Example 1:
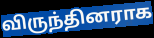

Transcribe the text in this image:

விருந்தினராக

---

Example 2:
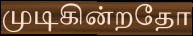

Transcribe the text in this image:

முடிகின்றதோ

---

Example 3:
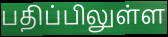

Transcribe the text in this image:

பதிப்பிலுள்ள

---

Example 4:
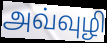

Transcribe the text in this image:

அவ்வுழி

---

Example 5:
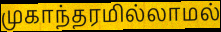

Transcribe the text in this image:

முகாந்தரமில்லாமல்